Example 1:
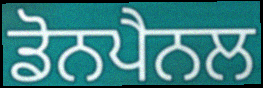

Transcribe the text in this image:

ਡੋਨਪੈਨਲ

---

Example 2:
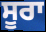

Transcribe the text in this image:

ਸੂਰਾ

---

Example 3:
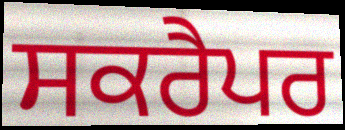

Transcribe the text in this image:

ਸਕਰੈਪਰ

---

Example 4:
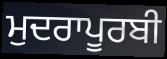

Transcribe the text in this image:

ਮੁਦਰਾਪੂਰਬੀ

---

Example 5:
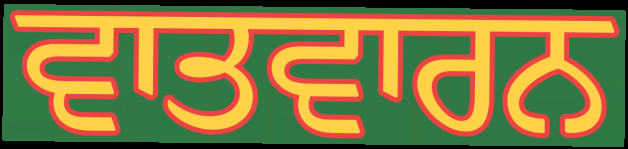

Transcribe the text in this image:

ਵਾਤਵਾਰਨ